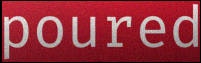
poured